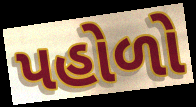
પહોળો